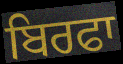
ਬਿਰਫਾ